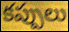
కప్పులు